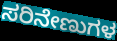
ಸರಿನೇಣುಗಳ